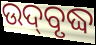
ଉଦ୍‌ବୃଦ୍ଧ